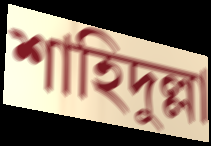
শাহিদুল্লা